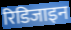
रिडिजाइन